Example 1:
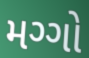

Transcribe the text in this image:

મગ્ગો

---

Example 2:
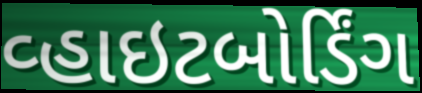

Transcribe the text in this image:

વ્હાઇટબોર્ડિંગ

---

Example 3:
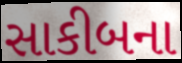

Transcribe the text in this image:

સાકીબના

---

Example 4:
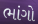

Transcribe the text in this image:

ભાંગો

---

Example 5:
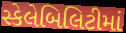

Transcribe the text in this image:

સ્કેલેબિલિટીમાં